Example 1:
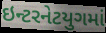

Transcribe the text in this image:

ઇન્ટરનેટયુગમાં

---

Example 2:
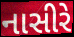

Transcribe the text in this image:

નાસીરે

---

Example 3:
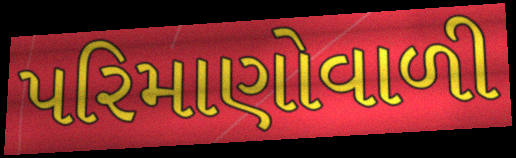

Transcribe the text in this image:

પરિમાણોવાળી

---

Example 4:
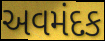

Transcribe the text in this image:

અવમંદક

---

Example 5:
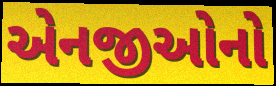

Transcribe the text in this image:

એનજીઓનો